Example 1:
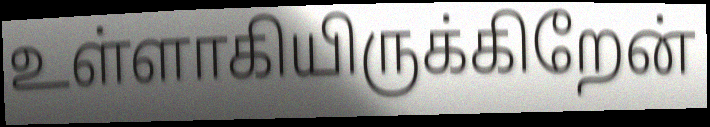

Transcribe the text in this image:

உள்ளாகியிருக்கிறேன்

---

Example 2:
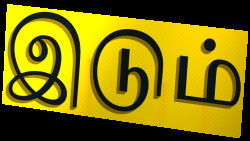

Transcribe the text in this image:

இடும்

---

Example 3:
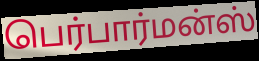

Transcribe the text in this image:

பெர்பார்மன்ஸ்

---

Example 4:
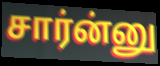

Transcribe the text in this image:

சார்ன்னு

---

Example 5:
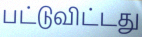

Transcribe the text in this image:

பட்டுவிட்டது